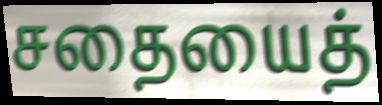
சதையைத்